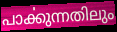
പാൎക്കുന്നതിലും